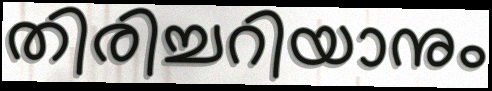
തിരിച്ചറിയാനും